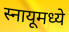
स्नायूमध्ये